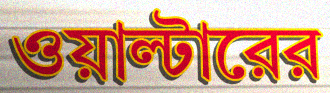
ওয়াল্টারের